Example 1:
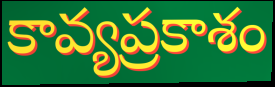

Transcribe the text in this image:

కావ్యప్రకాశం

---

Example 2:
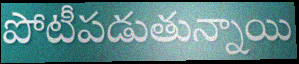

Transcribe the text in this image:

పోటీపడుతున్నాయి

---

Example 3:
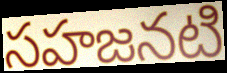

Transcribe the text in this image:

సహజనటి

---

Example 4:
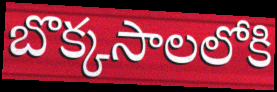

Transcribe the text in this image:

బొక్కసాలలోకి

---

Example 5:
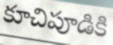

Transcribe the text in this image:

కూచిపూడికి